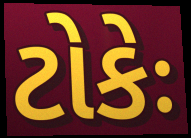
ટોકેઃ